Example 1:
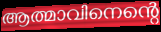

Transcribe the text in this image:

ആത്മാവിനെന്റെ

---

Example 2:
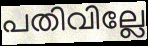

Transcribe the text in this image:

പതിവില്ലേ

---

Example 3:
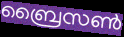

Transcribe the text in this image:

ബ്രൈസൺ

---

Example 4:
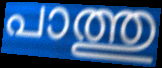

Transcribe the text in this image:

പാത്തു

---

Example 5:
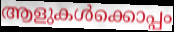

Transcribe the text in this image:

ആളുകൾക്കൊപ്പം